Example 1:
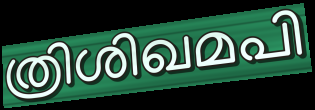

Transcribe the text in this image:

ത്രിശിഖമപി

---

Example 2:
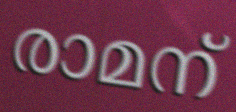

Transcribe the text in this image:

രാമന്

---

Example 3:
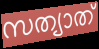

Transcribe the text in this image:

സത്യാത്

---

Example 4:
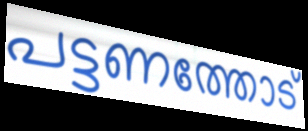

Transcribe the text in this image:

പട്ടണത്തോട്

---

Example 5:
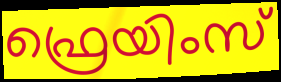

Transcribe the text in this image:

ഫ്രെയിംസ്